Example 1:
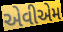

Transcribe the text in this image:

એવીએમ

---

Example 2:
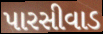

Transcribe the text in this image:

પારસીવાડ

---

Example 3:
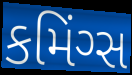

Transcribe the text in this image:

કમિંગ્સ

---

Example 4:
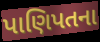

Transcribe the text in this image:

પાણિપતના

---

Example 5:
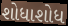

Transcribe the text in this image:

શોધાશોધ